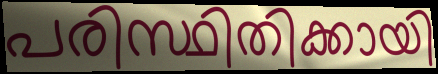
പരിസ്ഥിതിക്കായി